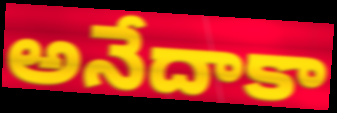
అనేదాకా